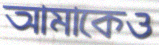
আমাকেও